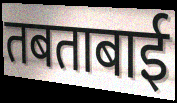
तबताबाई